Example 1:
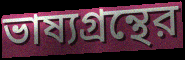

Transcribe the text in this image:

ভাষ্যগ্রন্থের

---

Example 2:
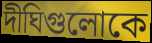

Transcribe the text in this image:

দীঘিগুলোকে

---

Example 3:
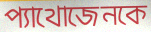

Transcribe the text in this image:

প্যাথোজেনকে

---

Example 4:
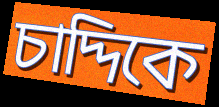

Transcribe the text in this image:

চাদ্দিকে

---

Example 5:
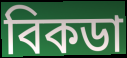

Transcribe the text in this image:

বিকডা